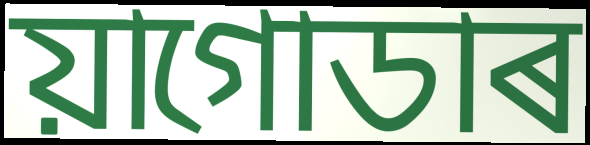
য়াগোডাৰ